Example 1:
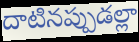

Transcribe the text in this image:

దాటినప్పుడల్లా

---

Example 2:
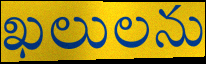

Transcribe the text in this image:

ఖలులను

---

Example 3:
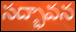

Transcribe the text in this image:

సద్భావన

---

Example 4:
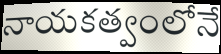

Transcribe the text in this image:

నాయకత్వంలోనే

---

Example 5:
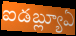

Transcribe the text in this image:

ఐడబ్ల్యూఏ